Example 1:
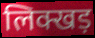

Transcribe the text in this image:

लिक्खड़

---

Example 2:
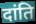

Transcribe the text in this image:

दांति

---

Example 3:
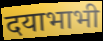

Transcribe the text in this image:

दयाभाभी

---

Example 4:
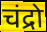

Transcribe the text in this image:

चंद्रो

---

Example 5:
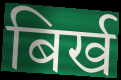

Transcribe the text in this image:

बिर्ख